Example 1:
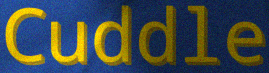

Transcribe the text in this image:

Cuddle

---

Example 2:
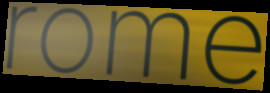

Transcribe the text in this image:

rome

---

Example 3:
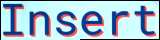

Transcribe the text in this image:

Insert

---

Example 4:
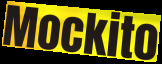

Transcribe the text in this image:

Mockito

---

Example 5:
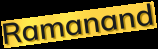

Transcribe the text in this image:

Ramanand